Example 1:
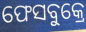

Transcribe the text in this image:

ଫେସବୁକ୍ରେ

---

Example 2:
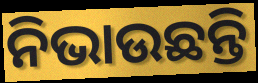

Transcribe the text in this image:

ନିଭାଉଛନ୍ତି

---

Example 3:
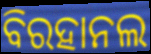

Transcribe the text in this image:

ବିରହାନଲ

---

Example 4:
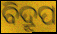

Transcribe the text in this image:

ବିଦ୍ରୂପ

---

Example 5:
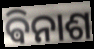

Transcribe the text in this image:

ଵିନାଶ